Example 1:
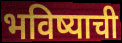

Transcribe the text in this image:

भविष्याची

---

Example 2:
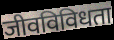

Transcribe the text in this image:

जीवविविधता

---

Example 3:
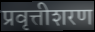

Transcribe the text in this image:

प्रवृत्तीशरण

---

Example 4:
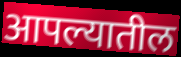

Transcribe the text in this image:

आपल्यातील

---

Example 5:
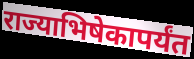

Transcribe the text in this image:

राज्याभिषेकापर्यंत